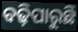
ବଢ଼ିପାରୁଛି